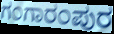
ಗಂಗಾರಂಪುರ